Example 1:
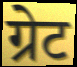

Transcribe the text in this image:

ग्रेट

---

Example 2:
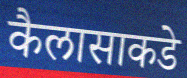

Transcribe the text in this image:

कैलासाकडे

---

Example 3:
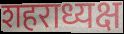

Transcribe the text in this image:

शहराध्यक्ष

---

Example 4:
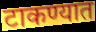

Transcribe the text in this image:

टाकण्यात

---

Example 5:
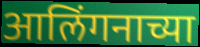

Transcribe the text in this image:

आलिंगनाच्या